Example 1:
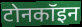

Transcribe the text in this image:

टोनकॉइन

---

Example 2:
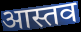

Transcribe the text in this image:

आस्तव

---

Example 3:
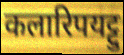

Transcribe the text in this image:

कलारिपयट्टु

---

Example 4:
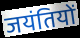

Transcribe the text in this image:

जयंतियों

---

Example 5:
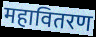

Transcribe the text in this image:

महावितरण